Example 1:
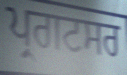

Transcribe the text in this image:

ਪ੍ਰਗਟਸਰ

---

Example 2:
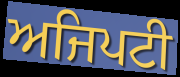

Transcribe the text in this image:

ਅਜਿਪਟੀ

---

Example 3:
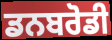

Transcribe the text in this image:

ਡਨਬਰੋਡੀ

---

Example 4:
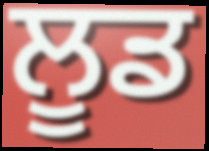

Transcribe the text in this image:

ਲੂਡ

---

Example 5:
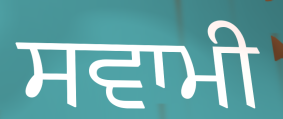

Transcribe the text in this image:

ਸਵਾਮੀ